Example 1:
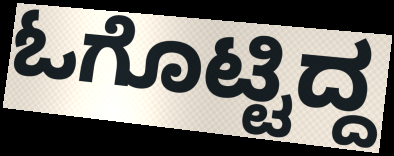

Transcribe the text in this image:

ಓಗೊಟ್ಟಿದ್ದ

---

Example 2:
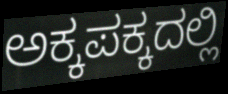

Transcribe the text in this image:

ಅಕ್ಕಪಕ್ಕದಲ್ಲಿ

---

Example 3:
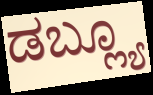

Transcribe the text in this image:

ಡಬ್ಲ್ಯೂ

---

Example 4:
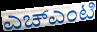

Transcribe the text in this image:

ಎಚ್ಎಂಟಿ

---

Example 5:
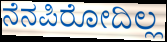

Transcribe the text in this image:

ನೆನಪಿರೋದಿಲ್ಲ